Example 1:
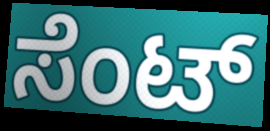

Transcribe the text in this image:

ಸೆಂಟ್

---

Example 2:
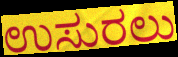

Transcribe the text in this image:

ಉಸುರಲು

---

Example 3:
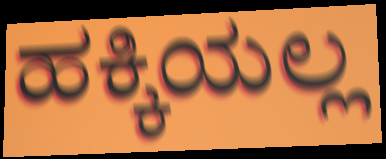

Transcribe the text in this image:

ಹಕ್ಕಿಯಲ್ಲ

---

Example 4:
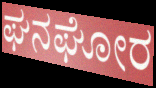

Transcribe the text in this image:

ಘನಘೋರ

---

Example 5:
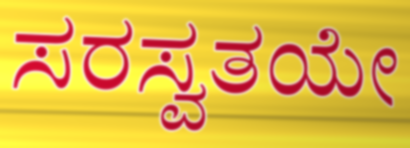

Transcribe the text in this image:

ಸರಸ್ವತಯೇ